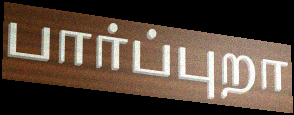
பார்ப்புறா